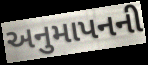
અનુમાપનની